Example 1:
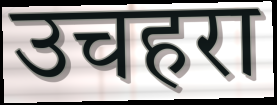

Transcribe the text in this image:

उचहरा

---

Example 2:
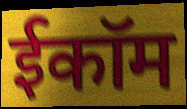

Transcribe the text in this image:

ईकॉम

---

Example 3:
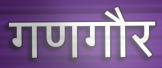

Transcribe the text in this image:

गणगौर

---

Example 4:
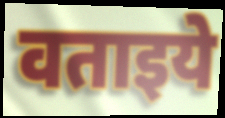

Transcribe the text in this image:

वताइये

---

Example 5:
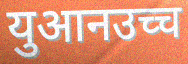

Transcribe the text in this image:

युआनउच्च